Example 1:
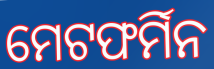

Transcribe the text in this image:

ମେଟଫର୍ମିନ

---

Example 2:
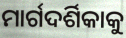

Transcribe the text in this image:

ମାର୍ଗଦର୍ଶିକାକୁ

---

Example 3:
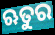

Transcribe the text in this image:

ଋତୁର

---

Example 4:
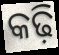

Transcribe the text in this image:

କଢ଼ି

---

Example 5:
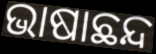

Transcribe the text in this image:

ଭାଷାଛନ୍ଦ